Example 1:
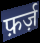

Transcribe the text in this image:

फ़र्ज़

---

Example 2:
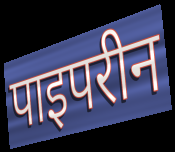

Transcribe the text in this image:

पाइपरीन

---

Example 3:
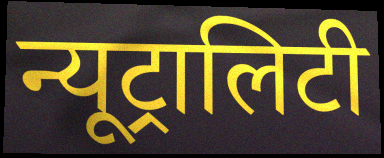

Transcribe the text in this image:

न्यूट्रालिटी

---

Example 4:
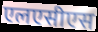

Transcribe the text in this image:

एलएसीएस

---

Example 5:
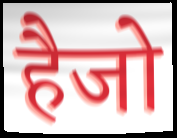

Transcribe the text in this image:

हैजो